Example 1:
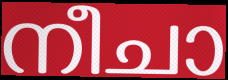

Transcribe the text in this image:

നീചാ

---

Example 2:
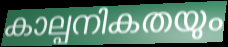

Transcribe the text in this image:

കാല്പനികതയും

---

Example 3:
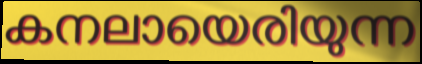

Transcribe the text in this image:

കനലായെരിയുന്ന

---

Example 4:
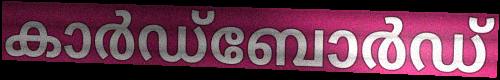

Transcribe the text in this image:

കാർഡ്ബോർഡ്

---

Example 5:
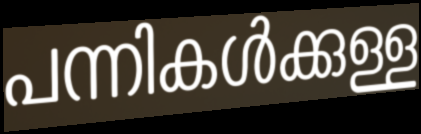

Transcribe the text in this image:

പന്നികൾക്കുള്ള